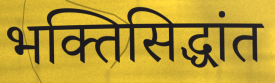
भक्तिसिद्धांत